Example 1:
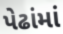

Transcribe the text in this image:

પેઢાંમાં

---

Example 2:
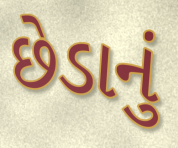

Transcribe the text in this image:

છેડાનું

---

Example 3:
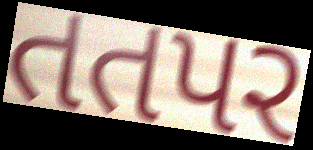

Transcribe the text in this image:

તતપર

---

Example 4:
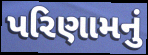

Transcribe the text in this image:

પરિણામનું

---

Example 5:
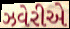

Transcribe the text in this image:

ઝવેરીએ